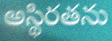
అస్థిరతను